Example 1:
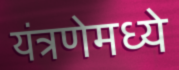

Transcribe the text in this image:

यंत्रणेमध्ये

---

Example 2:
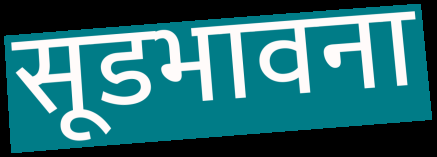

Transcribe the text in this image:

सूडभावना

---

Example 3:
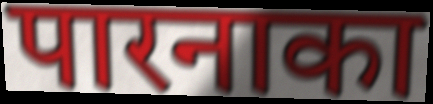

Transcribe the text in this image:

पारनाका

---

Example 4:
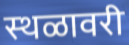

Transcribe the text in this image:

स्थळावरी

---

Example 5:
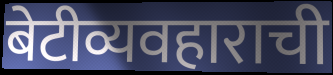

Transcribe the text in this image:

बेटीव्यवहाराची